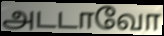
அடடாவோ